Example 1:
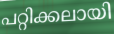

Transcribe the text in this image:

പറ്റിക്കലായി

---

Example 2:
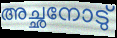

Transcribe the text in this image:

അച്ഛനോടു്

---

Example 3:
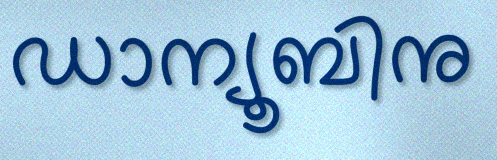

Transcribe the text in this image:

ഡാന്യൂബിനു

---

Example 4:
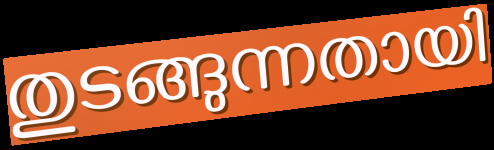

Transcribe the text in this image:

തുടങ്ങുന്നതായി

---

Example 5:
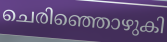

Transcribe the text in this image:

ചെരിഞ്ഞൊഴുകി